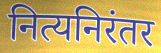
नित्यनिरंतर